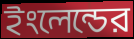
ইংলেন্ডের